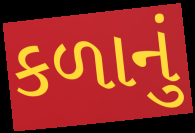
કળાનું